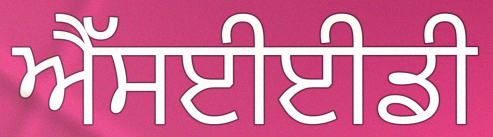
ਐੱਸਈਈਡੀ